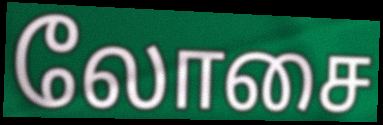
லோசை